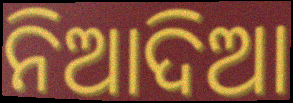
ନିଆଦିଆ